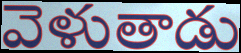
వెళుతాడు